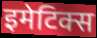
इमेटिक्स